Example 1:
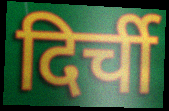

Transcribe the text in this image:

दिर्ची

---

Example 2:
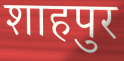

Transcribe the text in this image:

शाहपुर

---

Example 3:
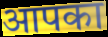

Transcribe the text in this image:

आपका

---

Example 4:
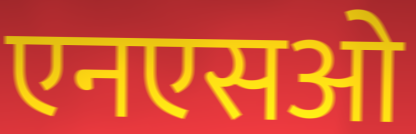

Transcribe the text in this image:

एनएसओ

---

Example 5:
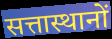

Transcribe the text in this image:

सत्तास्थानों